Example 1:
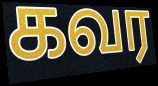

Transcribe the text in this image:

கவர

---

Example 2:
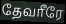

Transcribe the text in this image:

தேவரீரே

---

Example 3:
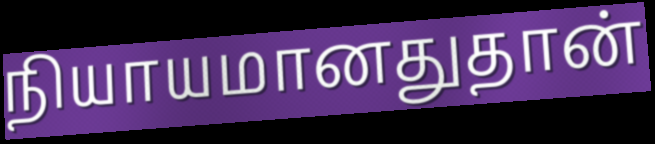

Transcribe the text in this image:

நியாயமானதுதான்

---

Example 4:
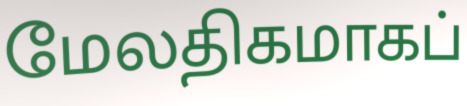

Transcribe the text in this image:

மேலதிகமாகப்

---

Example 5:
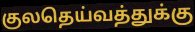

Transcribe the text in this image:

குலதெய்வத்துக்கு